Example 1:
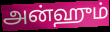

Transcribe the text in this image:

அன்ஹும்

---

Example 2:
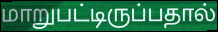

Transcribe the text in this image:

மாறுபட்டிருப்பதால்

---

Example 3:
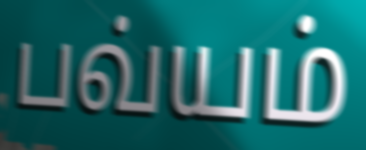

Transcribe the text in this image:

பவ்யம்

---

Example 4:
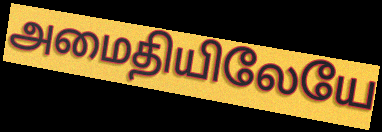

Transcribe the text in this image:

அமைதியிலேயே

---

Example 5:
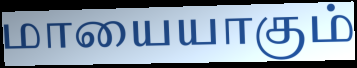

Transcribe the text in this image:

மாயையாகும்